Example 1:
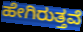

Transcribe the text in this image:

ಹೇಗಿರುತ್ತವೆ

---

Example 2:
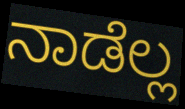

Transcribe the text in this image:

ನಾಡೆಲ್ಲ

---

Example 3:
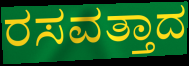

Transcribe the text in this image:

ರಸವತ್ತಾದ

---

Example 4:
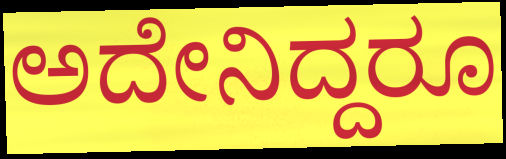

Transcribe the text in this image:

ಅದೇನಿದ್ದರೂ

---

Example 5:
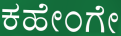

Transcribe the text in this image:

ಕಹೇಂಗೇ